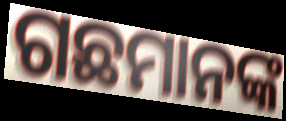
ଗଛମାନଙ୍କ